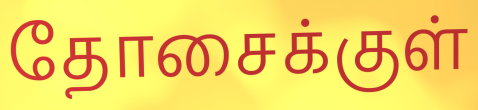
தோசைக்குள்